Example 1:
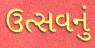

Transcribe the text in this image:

ઉત્સવનું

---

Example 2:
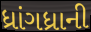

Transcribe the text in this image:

ધ્રાંગધ્રાની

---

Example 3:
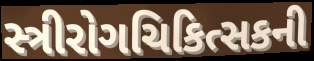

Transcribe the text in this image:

સ્ત્રીરોગચિકિત્સકની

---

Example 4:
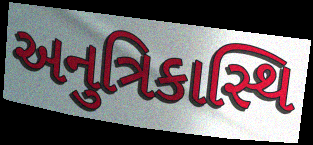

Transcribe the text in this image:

અનુત્રિકાસ્થિ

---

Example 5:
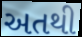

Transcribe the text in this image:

અતથી